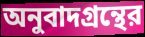
অনুবাদগ্রন্থের